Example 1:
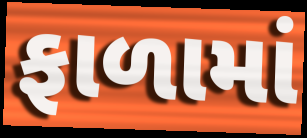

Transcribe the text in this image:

ફાળામાં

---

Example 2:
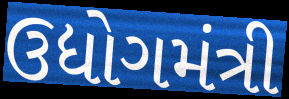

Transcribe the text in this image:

ઉદ્યોગમંત્રી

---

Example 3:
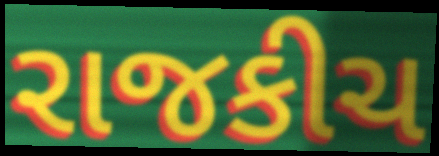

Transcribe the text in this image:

રાજકીચ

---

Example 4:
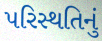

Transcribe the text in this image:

પરિસ્થતિનું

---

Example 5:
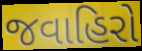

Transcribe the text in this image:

જવાહિરો